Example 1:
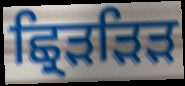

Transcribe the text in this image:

ਛ੍ਰਿੜੜਿੜ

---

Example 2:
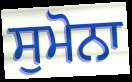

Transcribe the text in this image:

ਸੁਮੋਨਾ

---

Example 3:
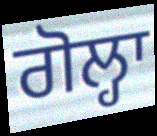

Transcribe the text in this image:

ਗੋਲ੍ਹਾ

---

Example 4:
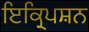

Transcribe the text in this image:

ਇਕ੍ਰਿਪਸ਼ਨ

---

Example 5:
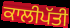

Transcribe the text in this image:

ਕਾਲੀਪੱਤੀ